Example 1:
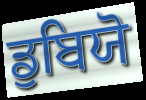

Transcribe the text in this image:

ਡੁਬਿਯੋ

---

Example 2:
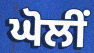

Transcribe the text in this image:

ਘੋਲੀਂ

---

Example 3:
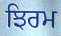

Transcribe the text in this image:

ਝਿਰਮ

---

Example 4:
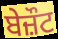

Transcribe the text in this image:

ਬੇਜ਼ੌਟ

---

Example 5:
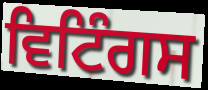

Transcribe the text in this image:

ਵਿਟਿੰਗਸ